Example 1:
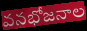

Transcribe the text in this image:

వనభోజనాల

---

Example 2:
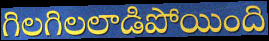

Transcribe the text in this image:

గిలగిలలాడిపోయింది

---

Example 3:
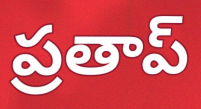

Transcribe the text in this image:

ప్రతాప్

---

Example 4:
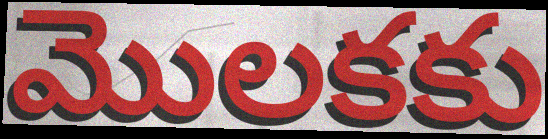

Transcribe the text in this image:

మొలకకు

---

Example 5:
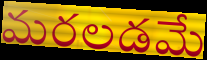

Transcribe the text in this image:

మరలడమే